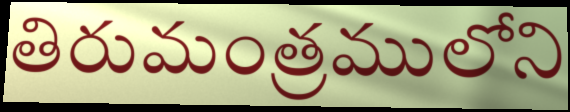
తిరుమంత్రములోని